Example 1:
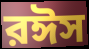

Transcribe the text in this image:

রঈস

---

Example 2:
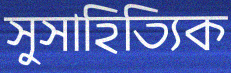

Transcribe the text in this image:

সুসাহিত্যিক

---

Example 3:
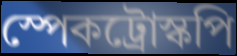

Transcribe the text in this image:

স্পেকট্রোস্কপি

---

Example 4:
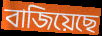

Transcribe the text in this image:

বাজিয়েছে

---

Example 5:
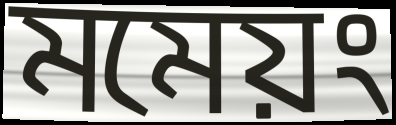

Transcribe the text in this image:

মমেয়ং